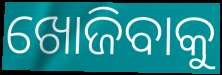
ଖୋଜିବାକୁ